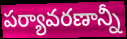
పర్యావరణాన్నీ